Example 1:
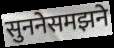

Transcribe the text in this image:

सुननेसमझने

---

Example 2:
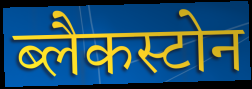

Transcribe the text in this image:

ब्लैकस्टोन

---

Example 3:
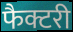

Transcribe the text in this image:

फैक्टरी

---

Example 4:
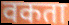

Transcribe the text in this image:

वकता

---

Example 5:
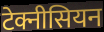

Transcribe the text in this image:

टेक्नीसियन